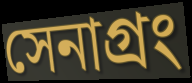
সেনাগ্রং